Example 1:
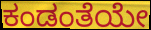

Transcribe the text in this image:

ಕಂಡಂತೆಯೇ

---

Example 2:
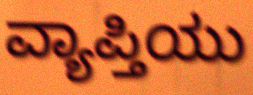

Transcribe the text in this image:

ವ್ಯಾಪ್ತಿಯು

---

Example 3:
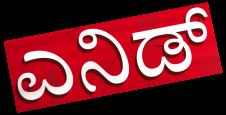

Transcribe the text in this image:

ಎನಿಡ್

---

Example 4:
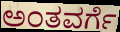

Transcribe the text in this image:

ಅಂತವರ್ಗೆ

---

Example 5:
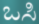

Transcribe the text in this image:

ಒಸಿ